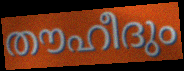
തൗഹീദും